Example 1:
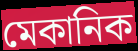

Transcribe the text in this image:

মেকানিক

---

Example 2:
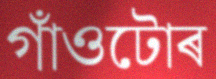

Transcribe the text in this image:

গাঁওটোৰ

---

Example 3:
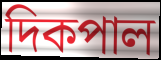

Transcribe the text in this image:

দিকপাল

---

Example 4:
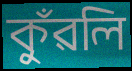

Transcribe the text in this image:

কুঁৱলি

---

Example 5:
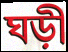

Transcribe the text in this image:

ঘড়ী